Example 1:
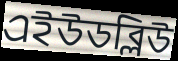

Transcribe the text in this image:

এইউডব্লিউ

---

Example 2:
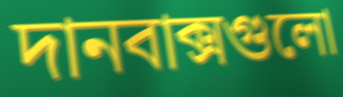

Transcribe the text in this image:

দানবাক্সগুলো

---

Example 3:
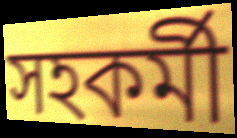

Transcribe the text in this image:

সহকর্মী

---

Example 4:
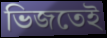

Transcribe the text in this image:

ভিজতেই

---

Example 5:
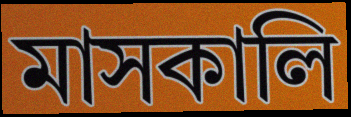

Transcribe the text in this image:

মাসকালি